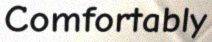
Comfortably